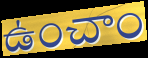
ఉంచాం